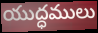
యుద్ధములు